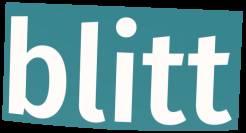
blitt